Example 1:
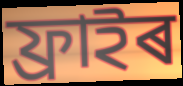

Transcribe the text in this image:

ফ্ৰাইৰ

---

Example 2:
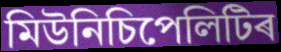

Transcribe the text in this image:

মিউনিচিপেলিটিৰ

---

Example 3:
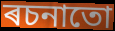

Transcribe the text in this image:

ৰচনাতো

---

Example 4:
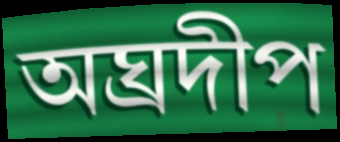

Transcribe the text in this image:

অঘ্ৰদীপ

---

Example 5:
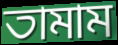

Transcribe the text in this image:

তামাম